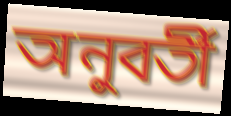
অনুবর্তী